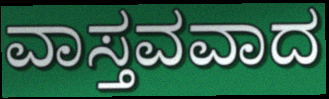
ವಾಸ್ತವವಾದ